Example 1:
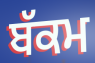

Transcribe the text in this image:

ਬੱਕਮ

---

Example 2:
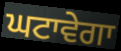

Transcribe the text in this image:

ਘਟਾਵੇਗਾ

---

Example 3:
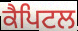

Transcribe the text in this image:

ਕੈਪਿਟਲ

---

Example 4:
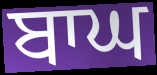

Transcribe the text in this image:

ਬਾਘ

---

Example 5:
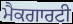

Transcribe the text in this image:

ਮੈਕਗਾਰਟੀ